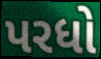
પરધો